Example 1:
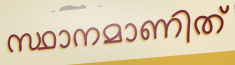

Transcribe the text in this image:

സ്ഥാനമാണിത്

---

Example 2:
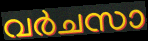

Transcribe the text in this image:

വർചസാ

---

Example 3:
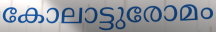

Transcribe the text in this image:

കോലാട്ടുരോമം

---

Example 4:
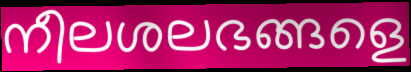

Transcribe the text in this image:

നീലശലഭങ്ങളെ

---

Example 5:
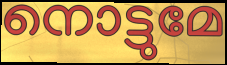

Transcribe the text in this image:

നൊട്ടുമേ